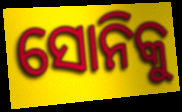
ସୋନିକୁ